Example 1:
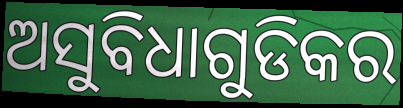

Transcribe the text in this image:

ଅସୁବିଧାଗୁଡିକର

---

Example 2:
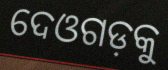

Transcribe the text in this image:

ଦେଓଗଡ଼କୁ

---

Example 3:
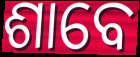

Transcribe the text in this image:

ଶାବେ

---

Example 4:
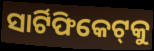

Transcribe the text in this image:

ସାର୍ଟିଫିକେଟ୍‌କୁ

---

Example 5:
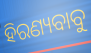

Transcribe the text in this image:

ହିରଣ୍ୟବାବୁ